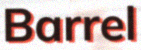
Barrel